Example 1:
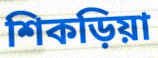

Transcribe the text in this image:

শিকড়িয়া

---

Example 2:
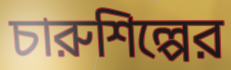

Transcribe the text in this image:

চারুশিল্পের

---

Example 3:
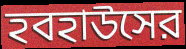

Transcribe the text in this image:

হবহাউসের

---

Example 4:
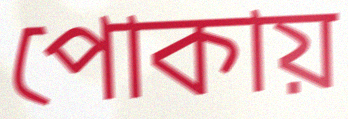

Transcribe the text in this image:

পোকায়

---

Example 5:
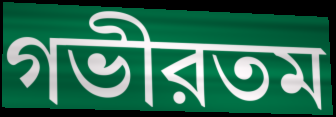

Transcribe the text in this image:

গভীরতম